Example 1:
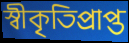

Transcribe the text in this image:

স্বীকৃতিপ্রাপ্ত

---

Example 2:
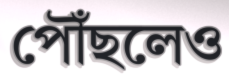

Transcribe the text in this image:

পৌঁছলেও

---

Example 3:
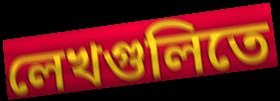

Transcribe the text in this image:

লেখগুলিতে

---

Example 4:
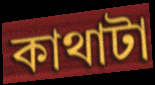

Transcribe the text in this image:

কাথাটা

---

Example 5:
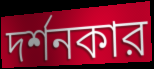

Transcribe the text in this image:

দর্শনকার